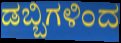
ಡಬ್ಬಿಗಳಿಂದ